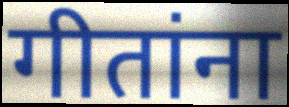
गीतांना